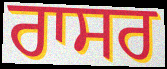
ਰਾਸਰ